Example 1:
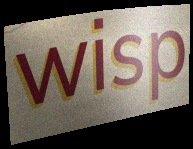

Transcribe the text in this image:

wisp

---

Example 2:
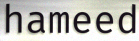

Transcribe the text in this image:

hameed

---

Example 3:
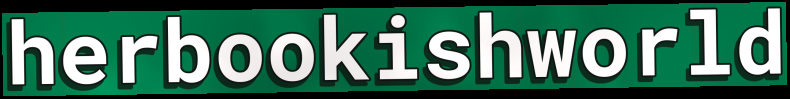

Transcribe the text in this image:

herbookishworld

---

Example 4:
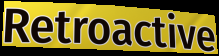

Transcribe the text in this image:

Retroactive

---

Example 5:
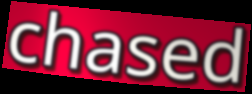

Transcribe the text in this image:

chased